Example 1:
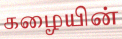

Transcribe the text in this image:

கழையின்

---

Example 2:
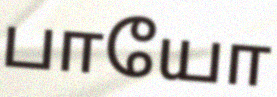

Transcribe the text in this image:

பாயோ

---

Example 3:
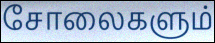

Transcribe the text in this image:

சோலைகளும்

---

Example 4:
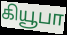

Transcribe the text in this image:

கியூபா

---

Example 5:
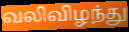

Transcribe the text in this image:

வலிவிழந்து